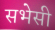
सभेसी